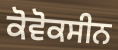
ਕੋਵੋਕਸੀਨ